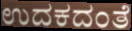
ಉದಕದಂತೆ